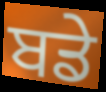
ਬਡੇ